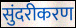
सुंदरीकरण